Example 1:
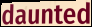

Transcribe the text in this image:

daunted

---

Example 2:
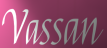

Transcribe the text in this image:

Vassan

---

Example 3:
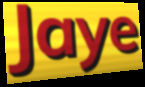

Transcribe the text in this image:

Jaye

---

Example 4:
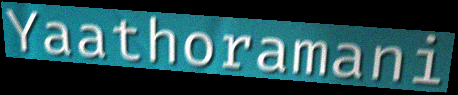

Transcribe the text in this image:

Yaathoramani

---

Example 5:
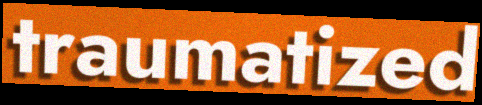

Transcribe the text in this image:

traumatized